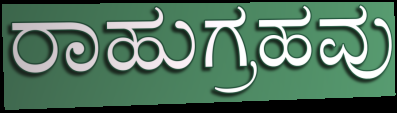
ರಾಹುಗ್ರಹವು